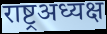
राष्ट्रअध्यक्ष